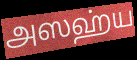
அஸஹ்ய